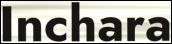
Inchara